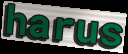
harus